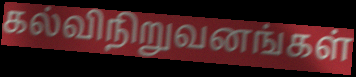
கல்விநிறுவனங்கள்